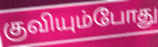
குவியும்போது